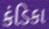
કંડિકા